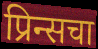
प्रिन्सचा